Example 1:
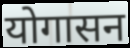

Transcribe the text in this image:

योगासन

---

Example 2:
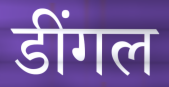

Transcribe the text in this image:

डींगल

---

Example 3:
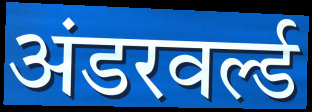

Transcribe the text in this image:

अंडरवर्ल्‍ड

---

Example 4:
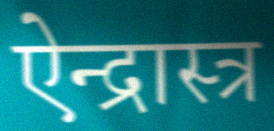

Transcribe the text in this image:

ऐन्द्रास्त्र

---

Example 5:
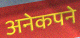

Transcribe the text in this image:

अनेकपने